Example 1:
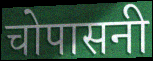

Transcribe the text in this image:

चोपासनी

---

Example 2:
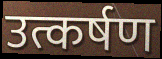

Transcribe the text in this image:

उत्कर्षण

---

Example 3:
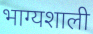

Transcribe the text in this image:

भाग्यशाली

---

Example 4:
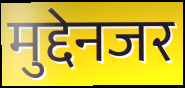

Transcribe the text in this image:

मुद्देनजर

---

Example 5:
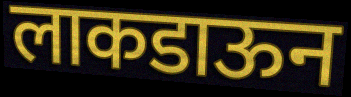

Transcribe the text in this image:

लाकडाऊन